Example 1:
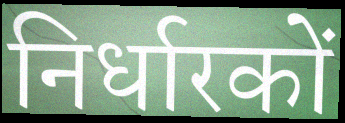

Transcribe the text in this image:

निर्धारकों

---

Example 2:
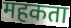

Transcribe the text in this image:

महकता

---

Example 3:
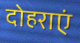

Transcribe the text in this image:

दोहराएं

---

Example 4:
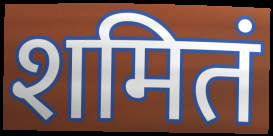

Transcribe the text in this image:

शमितं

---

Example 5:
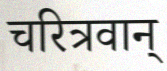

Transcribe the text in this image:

चरित्रवान्